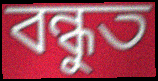
বন্ধুত